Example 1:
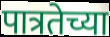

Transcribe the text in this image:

पात्रतेच्या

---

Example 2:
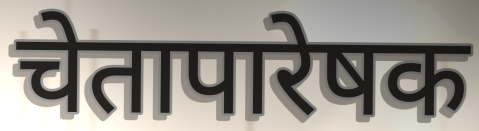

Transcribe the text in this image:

चेतापारेषक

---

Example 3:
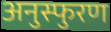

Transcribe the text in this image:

अनुस्फुरण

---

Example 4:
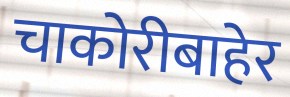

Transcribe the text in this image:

चाकोरीबाहेर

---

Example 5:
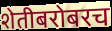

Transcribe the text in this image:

शेतीबरोबरच